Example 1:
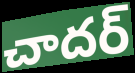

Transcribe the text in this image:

చాదర్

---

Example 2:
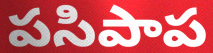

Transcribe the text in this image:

పసిపాప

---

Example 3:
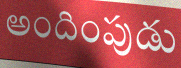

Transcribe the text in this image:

అందింపుడు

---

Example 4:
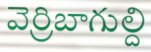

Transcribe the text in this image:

వెర్రిబాగుల్ది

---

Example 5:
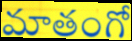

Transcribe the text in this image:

మాతంగో